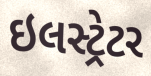
ઇલસ્ટ્રેટર